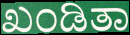
ಖಂಡಿತಾ